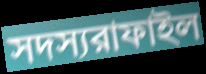
সদস্যরাফাইল